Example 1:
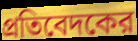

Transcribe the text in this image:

প্রতিবেদকের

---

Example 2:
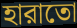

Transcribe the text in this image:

হারাতো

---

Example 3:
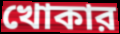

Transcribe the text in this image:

খোকার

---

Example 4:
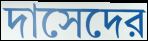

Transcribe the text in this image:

দাসেদের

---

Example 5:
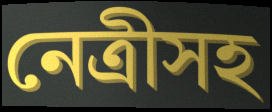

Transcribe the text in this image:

নেত্রীসহ